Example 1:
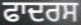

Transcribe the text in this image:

ਫਾਦਰਸ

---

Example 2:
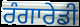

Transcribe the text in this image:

ਰੰਗਾਰੇਡੀ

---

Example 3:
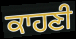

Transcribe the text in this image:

ਕਾਹਣੀ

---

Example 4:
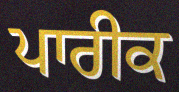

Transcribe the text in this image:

ਪਾਰੀਕ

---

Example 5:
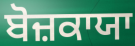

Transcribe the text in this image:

ਬੋਜ਼ਕਾਯਾ